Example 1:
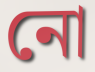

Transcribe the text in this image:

নো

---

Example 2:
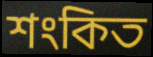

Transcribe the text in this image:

শংকিত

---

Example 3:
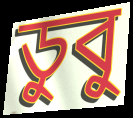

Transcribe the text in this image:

ডুবু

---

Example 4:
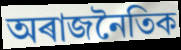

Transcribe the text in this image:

অৰাজনৈতিক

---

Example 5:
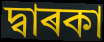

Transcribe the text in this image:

দ্বাৰকা